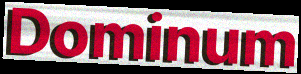
Dominum